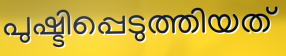
പുഷ്ടിപ്പെടുത്തിയത്